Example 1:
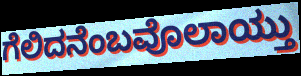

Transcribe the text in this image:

ಗೆಲಿದನೆಂಬವೊಲಾಯ್ತು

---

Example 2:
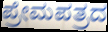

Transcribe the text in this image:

ಪ್ರೇಮಪತ್ರದ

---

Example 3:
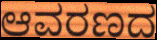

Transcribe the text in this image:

ಆವರಣದ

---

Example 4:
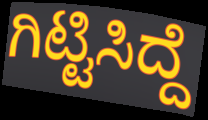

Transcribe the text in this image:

ಗಿಟ್ಟಿಸಿದ್ದೆ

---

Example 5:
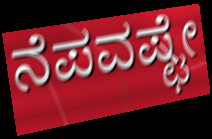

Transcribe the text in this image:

ನೆಪವಷ್ಟೇ